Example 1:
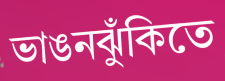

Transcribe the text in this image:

ভাঙনঝুঁকিতে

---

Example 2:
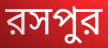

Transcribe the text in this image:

রসপুর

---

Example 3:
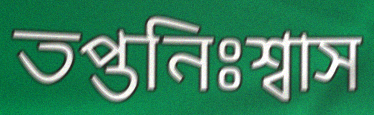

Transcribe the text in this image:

তপ্তনিঃশ্বাস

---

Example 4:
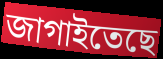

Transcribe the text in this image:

জাগাইতেছে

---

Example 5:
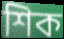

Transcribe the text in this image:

শিক